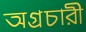
অগ্রচারী